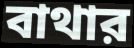
বাথার